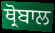
ਥ੍ਰੋਬਾਲ